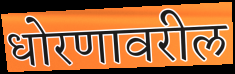
धोरणावरील